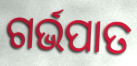
ଗର୍ଭପାତ